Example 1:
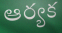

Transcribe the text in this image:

ఆర్యక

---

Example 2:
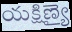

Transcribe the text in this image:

యక్షిణ్యై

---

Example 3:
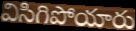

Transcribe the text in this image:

విసిగిపోయారు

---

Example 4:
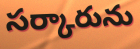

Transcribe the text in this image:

సర్కారును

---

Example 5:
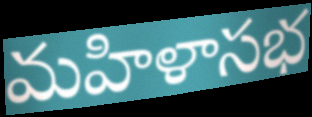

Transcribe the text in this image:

మహిళాసభ